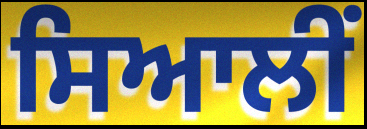
ਸਿਆਲੀਂ